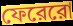
ফেরেরো